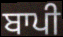
ਬਾਪੀ